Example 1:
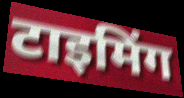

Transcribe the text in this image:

टाइमिंग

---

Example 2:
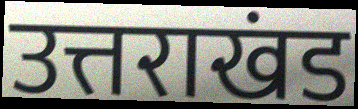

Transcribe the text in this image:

उत्तराखंड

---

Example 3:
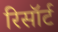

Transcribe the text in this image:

रिसॉर्ट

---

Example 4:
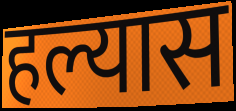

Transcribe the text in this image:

हल्यास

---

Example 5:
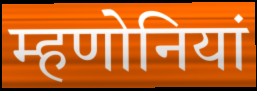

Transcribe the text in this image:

म्हणोनियां